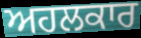
ਅਹਲਕਾਰ